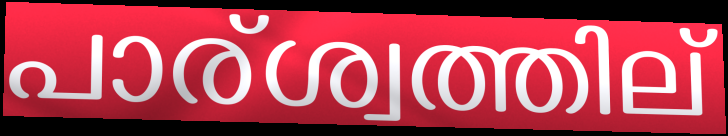
പാര്ശ്വത്തില്